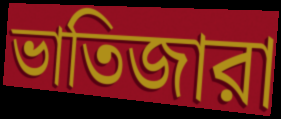
ভাতিজারা